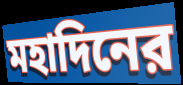
মহাদিনের